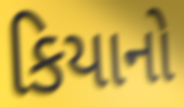
કિયાનો